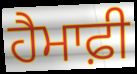
ਹੈਮਾਫ਼ੀ